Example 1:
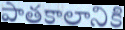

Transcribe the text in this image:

పాతకాలానికి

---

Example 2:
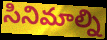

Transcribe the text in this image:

సినిమాల్ని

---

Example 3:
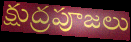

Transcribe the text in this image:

క్షుద్రపూజలు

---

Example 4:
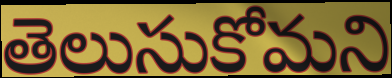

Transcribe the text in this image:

తెలుసుకోమని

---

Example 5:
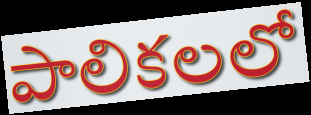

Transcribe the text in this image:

పాలికలలో